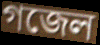
গজেল